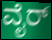
ವೈರ್